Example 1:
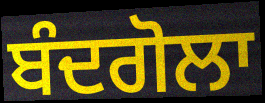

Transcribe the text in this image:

ਬੰਦਗੋਲਾ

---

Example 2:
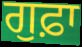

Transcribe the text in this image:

ਗੁਫ਼ਾ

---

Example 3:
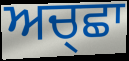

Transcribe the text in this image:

ਅਚ੍ਛਾ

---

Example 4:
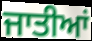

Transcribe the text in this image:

ਜਾਤੀਆਂ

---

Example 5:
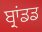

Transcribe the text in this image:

ਬ੍ਰਾਂਡਡ